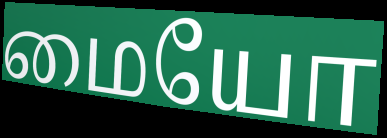
மையோ